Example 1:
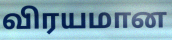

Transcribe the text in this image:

விரயமான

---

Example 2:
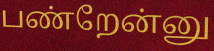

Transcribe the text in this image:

பண்றேன்னு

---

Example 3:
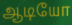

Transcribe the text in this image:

ஆடியோ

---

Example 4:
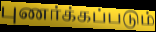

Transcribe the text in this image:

புணர்க்கப்படும்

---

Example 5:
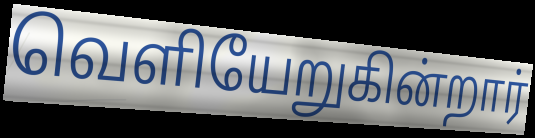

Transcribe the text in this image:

வெளியேறுகின்றார்